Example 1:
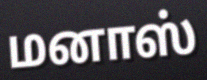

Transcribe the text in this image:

மனாஸ்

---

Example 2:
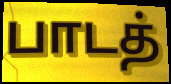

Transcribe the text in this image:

பாடத்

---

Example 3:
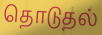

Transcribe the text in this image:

தொடுதல்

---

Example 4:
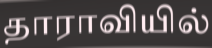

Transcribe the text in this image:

தாராவியில்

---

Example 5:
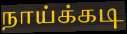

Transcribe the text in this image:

நாய்க்கடி